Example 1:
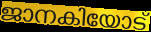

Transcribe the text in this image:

ജാനകിയോട്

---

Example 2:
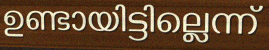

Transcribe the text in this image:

ഉണ്ടായിട്ടില്ലെന്ന്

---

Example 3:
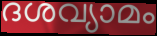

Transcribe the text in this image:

ദശവ്യാമം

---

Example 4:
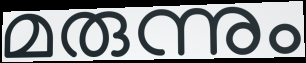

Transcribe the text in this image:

മരുന്നും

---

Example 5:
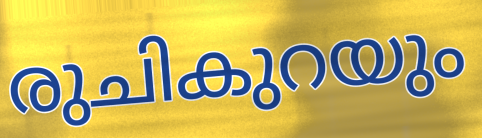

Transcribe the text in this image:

രുചികുറയും